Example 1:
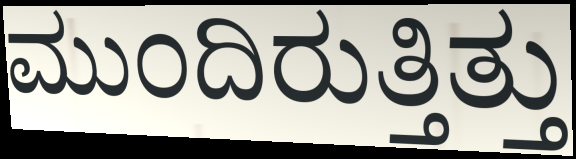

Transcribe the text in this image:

ಮುಂದಿರುತ್ತಿತ್ತು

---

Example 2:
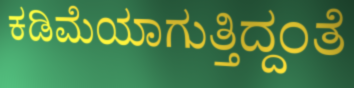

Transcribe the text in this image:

ಕಡಿಮೆಯಾಗುತ್ತಿದ್ದಂತೆ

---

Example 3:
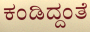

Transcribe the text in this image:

ಕಂಡಿದ್ದಂತೆ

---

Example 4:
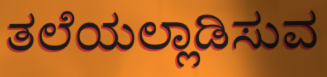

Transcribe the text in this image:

ತಲೆಯಲ್ಲಾಡಿಸುವ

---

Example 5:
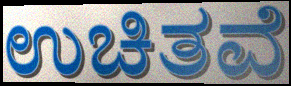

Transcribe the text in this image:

ಉಚಿತವೆ